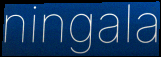
ningala